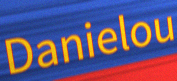
Danielou